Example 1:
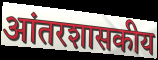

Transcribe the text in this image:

आंतरशासकीय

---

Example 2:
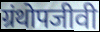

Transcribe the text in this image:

ग्रंथोपजीवी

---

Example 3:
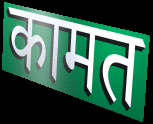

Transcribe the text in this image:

कामत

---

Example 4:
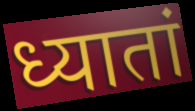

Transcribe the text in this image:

ध्यातां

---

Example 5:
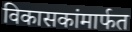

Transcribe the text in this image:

विकासकांमार्फत